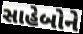
સાહેબોને